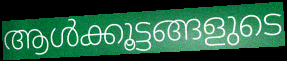
ആൾക്കൂട്ടങ്ങളുടെ